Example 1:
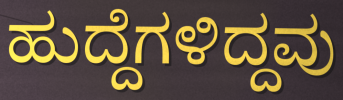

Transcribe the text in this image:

ಹುದ್ದೆಗಳಿದ್ದವು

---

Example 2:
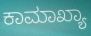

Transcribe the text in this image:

ಕಾಮಾಖ್ಯಾ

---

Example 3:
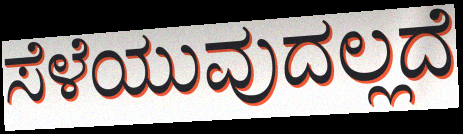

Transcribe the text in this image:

ಸೆಳೆಯುವುದಲ್ಲದೆ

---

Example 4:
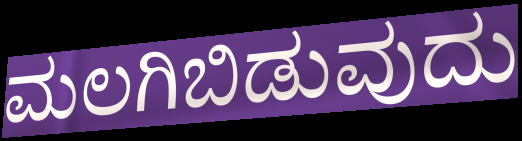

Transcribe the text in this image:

ಮಲಗಿಬಿಡುವುದು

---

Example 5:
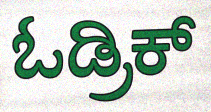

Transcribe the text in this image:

ಓಡ್ರಿಕ್